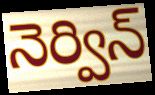
నెర్విన్